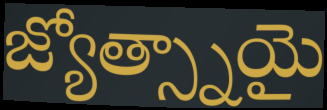
జ్యోత్స్నాయై